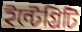
ইন্টেগ্রিটি